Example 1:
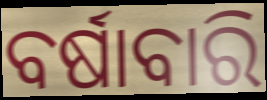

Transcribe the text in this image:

ବର୍ଷାବାରି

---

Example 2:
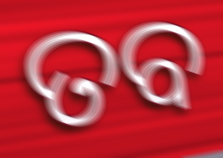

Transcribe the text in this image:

ତବ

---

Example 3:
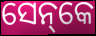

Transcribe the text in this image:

ସେନ୍‌କେ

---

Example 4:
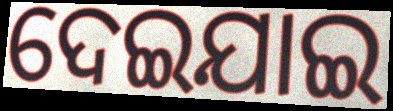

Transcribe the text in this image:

ଦେଇଯାଇ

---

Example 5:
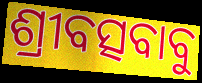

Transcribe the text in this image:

ଶ୍ରୀବତ୍ସବାବୁ